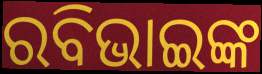
ରବିଭାଇଙ୍କ